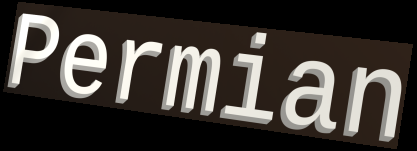
Permian